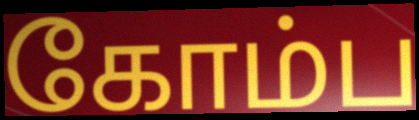
கோம்ப